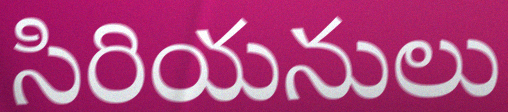
సిరియనులు